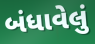
બંધાવેલું